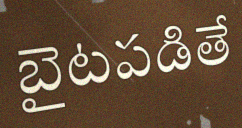
బైటపడితే